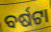
ବର୍ଷଟା